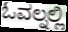
ಓವಲ್ನಲ್ಲಿ